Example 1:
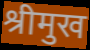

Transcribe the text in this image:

श्रीमुख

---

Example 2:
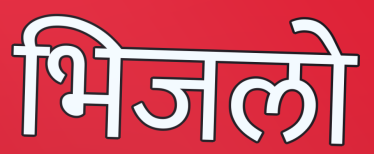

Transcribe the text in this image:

भिजलो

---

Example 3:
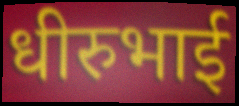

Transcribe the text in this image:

धीरुभाई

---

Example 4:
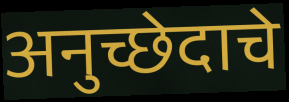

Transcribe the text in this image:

अनुच्छेदाचे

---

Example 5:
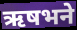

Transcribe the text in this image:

ऋषभने